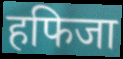
हफिजा